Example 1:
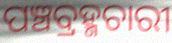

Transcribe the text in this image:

ପଞ୍ଚବ୍ରହ୍ମଚାରୀ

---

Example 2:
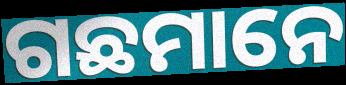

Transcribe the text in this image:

ଗଛମାନେ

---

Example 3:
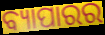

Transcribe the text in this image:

ବ୍ୟାପାରର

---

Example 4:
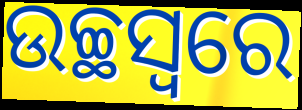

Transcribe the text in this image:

ଉଚ୍ଛସ୍ୱରେ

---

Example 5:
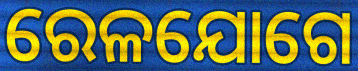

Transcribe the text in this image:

ରେଳଯୋଗେ